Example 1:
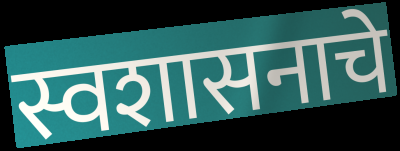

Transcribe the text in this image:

स्वशासनाचे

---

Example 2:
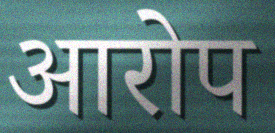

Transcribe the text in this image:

आरोप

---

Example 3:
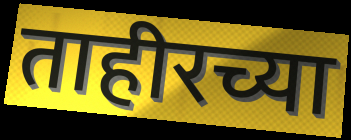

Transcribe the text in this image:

ताहीरच्या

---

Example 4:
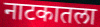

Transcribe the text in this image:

नाटकातला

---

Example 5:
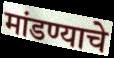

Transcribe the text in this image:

मांडण्याचे